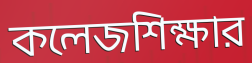
কলেজশিক্ষার